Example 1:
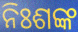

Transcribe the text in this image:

ନିଃଶଙ୍କ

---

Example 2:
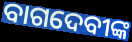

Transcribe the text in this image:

ବାଗଦେବୀଙ୍କ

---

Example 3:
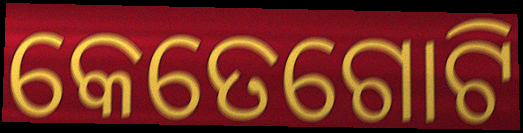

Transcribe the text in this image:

କେତେଗୋଟି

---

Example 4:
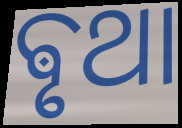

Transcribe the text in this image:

ଵୃଥା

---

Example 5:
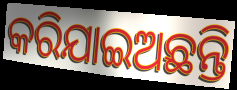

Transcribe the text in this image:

କରିଯାଇଅଛନ୍ତି